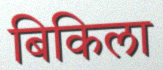
बिकिला